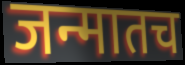
जन्मातच